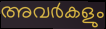
അവർകളും